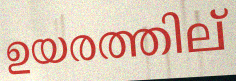
ഉയരത്തില്